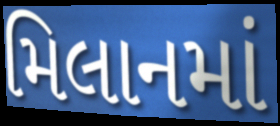
મિલાનમાં